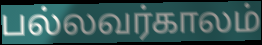
பல்லவர்காலம்